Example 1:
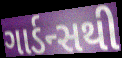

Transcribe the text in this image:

ગાર્ડન્સથી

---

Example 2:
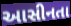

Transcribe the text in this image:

આસીનતા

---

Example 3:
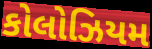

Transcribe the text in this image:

કોલોઝિયમ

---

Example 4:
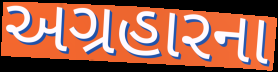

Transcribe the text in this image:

અગ્રહારના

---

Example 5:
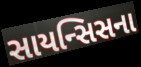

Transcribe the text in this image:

સાયન્સિસના